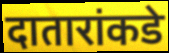
दातारांकडे